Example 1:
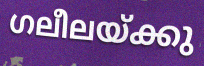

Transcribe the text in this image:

ഗലീലയ്ക്കു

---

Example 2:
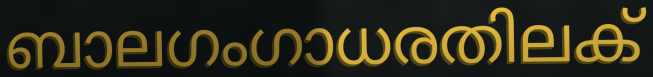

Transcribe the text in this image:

ബാലഗംഗാധരതിലക്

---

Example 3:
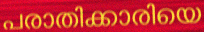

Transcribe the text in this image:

പരാതിക്കാരിയെ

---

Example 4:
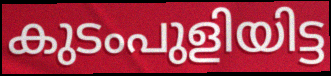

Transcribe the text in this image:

കുടംപുളിയിട്ട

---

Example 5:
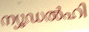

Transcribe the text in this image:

ന്യൂഡൽഹി